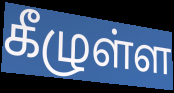
கீழுள்ள